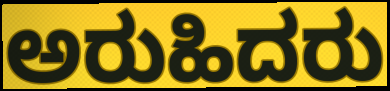
ಅರುಹಿದರು